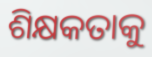
ଶିକ୍ଷକତାକୁ